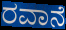
ರವಾನೆ